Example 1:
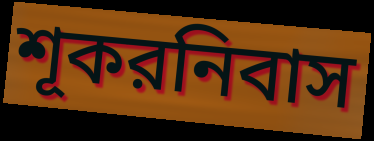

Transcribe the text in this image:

শূকরনিবাস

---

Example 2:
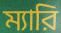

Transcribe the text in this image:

ম্যারি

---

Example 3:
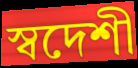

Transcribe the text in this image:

স্বদেশী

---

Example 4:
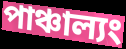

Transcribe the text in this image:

পাঞ্চাল্যং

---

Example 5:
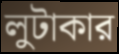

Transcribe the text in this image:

লুটাকার